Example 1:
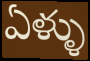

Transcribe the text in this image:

ఏళ్ళు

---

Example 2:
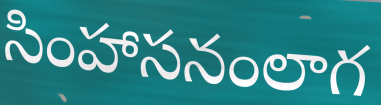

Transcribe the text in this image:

సింహాసనంలాగ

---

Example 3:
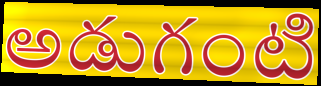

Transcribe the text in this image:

అడుగంటి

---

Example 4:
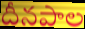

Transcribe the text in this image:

దీనపాల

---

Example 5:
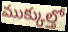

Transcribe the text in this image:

ముక్కుల్తో